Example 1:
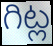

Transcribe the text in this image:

గిట్ల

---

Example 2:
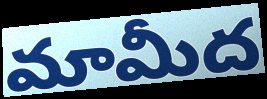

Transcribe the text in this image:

మామీద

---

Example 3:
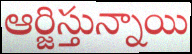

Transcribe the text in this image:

ఆర్జిస్తున్నాయి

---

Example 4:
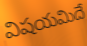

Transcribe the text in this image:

విషయమిదే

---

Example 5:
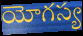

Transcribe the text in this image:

యోగస్య